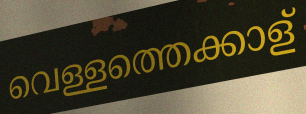
വെള്ളത്തെക്കാള്